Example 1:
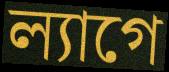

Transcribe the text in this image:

ল্যাগে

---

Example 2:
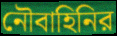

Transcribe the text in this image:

নৌবাহিনির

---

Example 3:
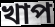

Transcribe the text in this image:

খাপ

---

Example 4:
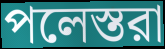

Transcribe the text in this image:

পলেস্তরা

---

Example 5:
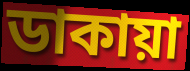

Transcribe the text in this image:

ডাকায়া